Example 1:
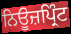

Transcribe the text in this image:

ਨਿਊਜ਼ਪ੍ਰਿੰਟ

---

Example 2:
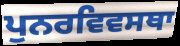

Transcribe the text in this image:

ਪੁਨਰਵਿਵਸਥਾ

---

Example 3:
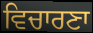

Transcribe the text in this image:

ਵਿਚਾਰਣਾ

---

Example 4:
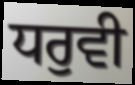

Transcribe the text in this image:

ਧਰੁਵੀ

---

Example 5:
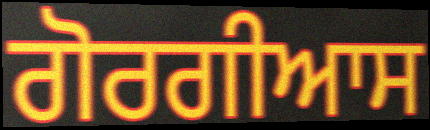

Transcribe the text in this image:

ਗੋਰਗੀਆਸ